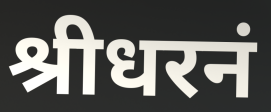
श्रीधरनं